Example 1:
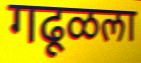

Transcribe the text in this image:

गढूळला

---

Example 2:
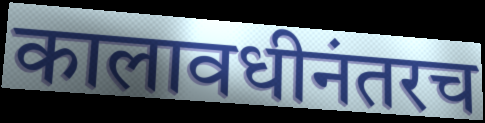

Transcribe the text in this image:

कालावधीनंतरच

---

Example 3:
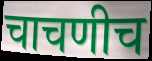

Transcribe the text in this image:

चाचणीच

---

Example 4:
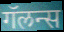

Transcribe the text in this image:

गॅलन्स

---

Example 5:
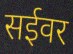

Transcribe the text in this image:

सईवर